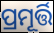
ପ୍ରମୂର୍ତ୍ତି